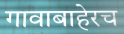
गावाबाहेरच